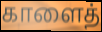
காளைத்